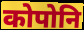
कोपोनि